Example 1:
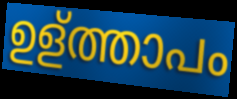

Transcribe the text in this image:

ഉള്ത്താപം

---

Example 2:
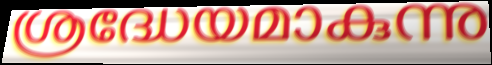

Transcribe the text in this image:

ശ്രദ്ധേയമാകുന്നു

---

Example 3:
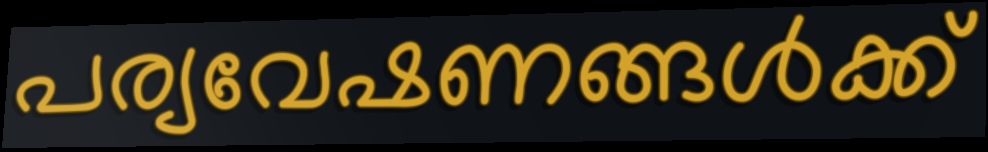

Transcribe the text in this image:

പര്യവേഷണങ്ങൾക്ക്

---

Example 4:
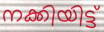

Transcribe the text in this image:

നക്കിയിട്ട്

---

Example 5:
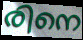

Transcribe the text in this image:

രിനെ